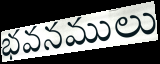
భవనములు